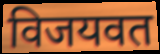
विजयवत